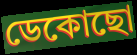
ডেকোছো